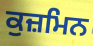
ਕੁਜ਼ਮਿਨ